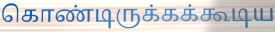
கொண்டிருக்கக்கூடிய